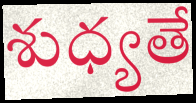
శుధ్యతే